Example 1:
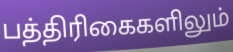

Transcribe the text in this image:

பத்திரிகைகளிலும்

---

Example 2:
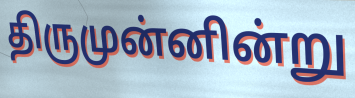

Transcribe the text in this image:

திருமுன்னின்று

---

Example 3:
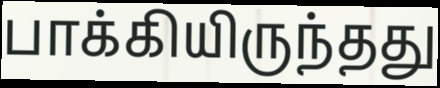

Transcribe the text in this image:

பாக்கியிருந்தது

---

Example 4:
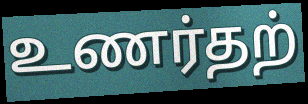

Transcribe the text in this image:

உணர்தற்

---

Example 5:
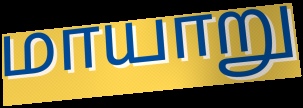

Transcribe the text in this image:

மாயாறு